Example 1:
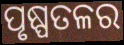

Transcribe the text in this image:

ପୃଷ୍ପତଳର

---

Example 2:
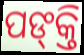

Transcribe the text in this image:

ପଙ୍‍କ୍ତି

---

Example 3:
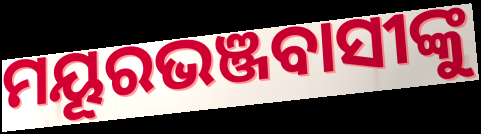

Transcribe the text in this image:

ମୟୂରଭଞ୍ଜବାସୀଙ୍କୁ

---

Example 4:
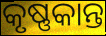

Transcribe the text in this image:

କୃଷ୍ଣକାନ୍ତ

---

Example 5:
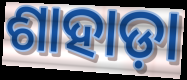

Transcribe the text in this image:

ଶାହାଡ଼ା